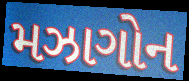
મઝાગોન